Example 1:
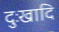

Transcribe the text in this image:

दुःखादि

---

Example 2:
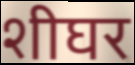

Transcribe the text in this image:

शीघर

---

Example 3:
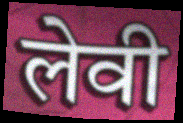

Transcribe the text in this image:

लेवी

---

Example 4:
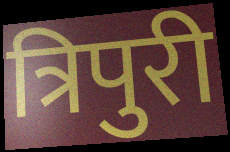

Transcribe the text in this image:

त्रिपुरी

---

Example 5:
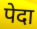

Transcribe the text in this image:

पेदा